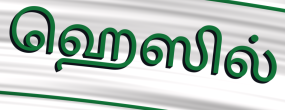
ஹெஸில்